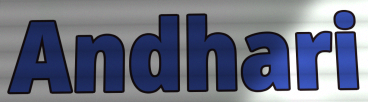
Andhari